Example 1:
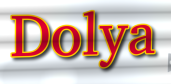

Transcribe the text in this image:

Dolya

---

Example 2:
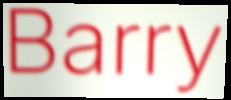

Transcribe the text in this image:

Barry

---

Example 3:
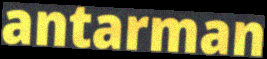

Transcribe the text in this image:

antarman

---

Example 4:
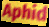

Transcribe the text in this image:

Aphid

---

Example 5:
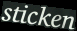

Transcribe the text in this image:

sticken